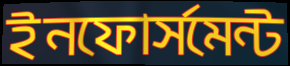
ইনফোর্সমেন্ট